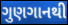
ગુણગાનથી